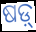
ଷଡ଼୍